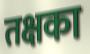
तक्षका